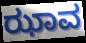
ಝಾವ